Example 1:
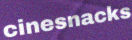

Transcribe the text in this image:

cinesnacks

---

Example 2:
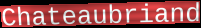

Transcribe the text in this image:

Chateaubriand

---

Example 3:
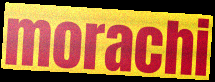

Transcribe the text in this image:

morachi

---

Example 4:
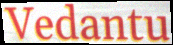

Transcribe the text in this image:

Vedantu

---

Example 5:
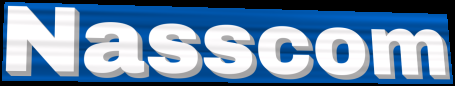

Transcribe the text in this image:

Nasscom